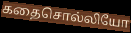
கதைசொல்லியோ